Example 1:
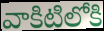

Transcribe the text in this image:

వాకిటిలోకి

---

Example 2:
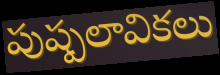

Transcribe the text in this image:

పుష్పలావికలు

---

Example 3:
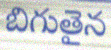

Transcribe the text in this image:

బిగుతైన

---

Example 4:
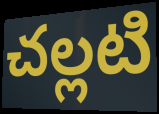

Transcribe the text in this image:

చల్లటి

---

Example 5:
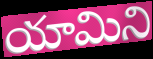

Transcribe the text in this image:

యామిని